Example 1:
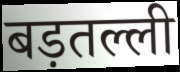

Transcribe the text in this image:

बड़तल्ली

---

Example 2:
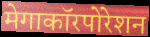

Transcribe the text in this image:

मेगाकॉरपोरेशन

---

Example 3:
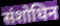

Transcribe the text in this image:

संशोधिन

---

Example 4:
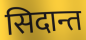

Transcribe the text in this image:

सिदान्त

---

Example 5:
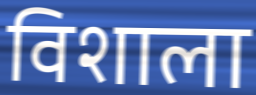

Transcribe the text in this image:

विशाला